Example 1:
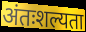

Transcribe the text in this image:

अंतःशल्यता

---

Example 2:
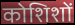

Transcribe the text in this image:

कोशिशों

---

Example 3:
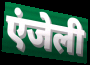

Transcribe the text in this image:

एंजेली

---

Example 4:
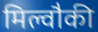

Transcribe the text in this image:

मिल्वौकी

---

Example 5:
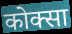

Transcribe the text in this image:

कोक्सा